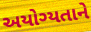
અયોગ્યતાને